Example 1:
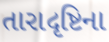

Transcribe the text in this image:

તારાદૃષ્ટિના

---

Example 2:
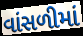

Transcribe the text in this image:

વાંસળીમાં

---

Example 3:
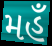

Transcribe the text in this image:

મહઁ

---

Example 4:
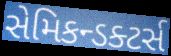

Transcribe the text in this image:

સેમિકન્ડક્ટર્સ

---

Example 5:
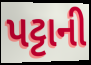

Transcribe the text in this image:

પટ્ટાની